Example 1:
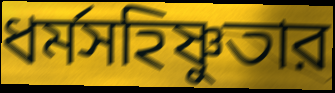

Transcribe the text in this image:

ধর্মসহিষ্ণুতার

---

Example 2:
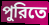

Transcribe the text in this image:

পুরিতে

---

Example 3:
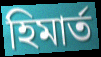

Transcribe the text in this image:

হিমার্ত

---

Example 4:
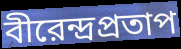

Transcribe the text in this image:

বীরেন্দ্রপ্রতাপ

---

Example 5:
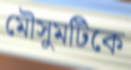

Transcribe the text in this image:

মৌসুমটিকে